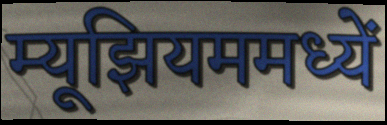
म्यूझियममध्यें